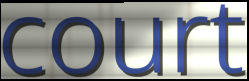
court